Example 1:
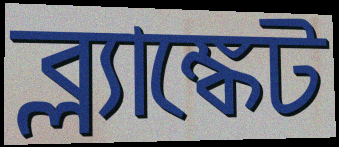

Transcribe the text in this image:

ব্ল্যাঙ্কেট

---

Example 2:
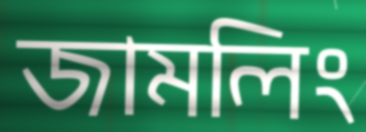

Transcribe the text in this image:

জামলিং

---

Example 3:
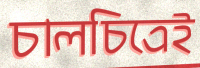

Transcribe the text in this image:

চালচিত্রেই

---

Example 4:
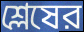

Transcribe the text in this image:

শ্লেষের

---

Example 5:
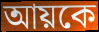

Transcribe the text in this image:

আয়কে